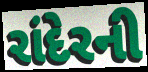
રાંદેરની